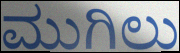
ಮುಗಿಲು